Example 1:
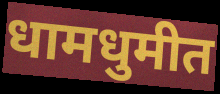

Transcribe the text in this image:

धामधुमीत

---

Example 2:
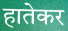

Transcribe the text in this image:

हातेकर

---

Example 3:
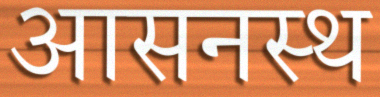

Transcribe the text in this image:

आसनस्थ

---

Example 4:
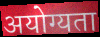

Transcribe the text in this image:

अयोग्यता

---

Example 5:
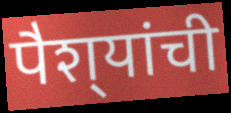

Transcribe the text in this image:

पैश्यांची